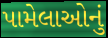
પામેલાઓનું